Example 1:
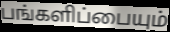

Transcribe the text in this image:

பங்களிப்பையும்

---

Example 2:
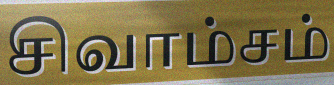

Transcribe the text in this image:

சிவாம்சம்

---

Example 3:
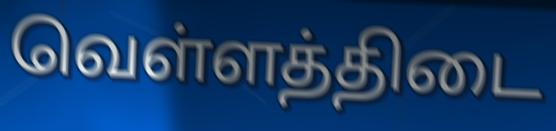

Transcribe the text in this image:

வெள்ளத்திடை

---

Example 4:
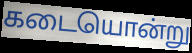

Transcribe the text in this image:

கடையொன்று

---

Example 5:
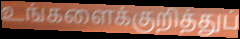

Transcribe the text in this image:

உங்களைக்குறித்துப்